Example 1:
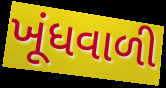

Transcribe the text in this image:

ખૂંધવાળી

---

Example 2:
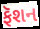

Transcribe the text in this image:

ફૅશન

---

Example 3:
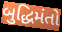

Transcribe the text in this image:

બુદ્ધિમંતો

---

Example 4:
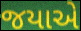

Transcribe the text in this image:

જયાએ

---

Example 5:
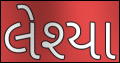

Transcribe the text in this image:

લેશ્યા